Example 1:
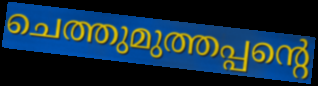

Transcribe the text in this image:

ചെത്തുമുത്തപ്പന്റെ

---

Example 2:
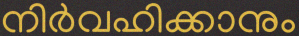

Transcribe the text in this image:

നിർവഹിക്കാനും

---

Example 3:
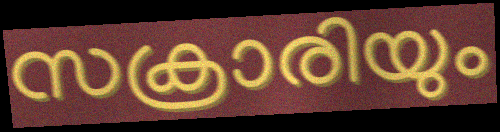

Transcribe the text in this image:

സക്രാരിയും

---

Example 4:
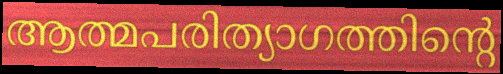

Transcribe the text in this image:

ആത്മപരിത്യാഗത്തിന്റെ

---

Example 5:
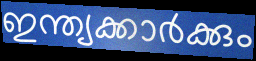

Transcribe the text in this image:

ഇന്ത്യക്കാർക്കും